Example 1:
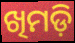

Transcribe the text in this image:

ଖିମଡ଼ି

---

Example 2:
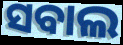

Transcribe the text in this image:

ସବାଲ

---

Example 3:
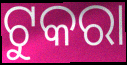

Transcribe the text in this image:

ଟୁକରା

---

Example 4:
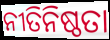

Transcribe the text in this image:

ନୀତିନିଷ୍ଠତା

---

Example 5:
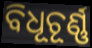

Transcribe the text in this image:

ବିଧୂଚୂର୍ଣ୍ଣ